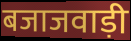
बजाजवाड़ी